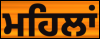
ਮਹਿਲਾਂ